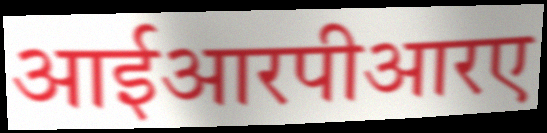
आईआरपीआरए